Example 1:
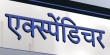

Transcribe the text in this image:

एक्स्पेंडिचर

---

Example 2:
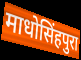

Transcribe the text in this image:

माधोसिंहपुरा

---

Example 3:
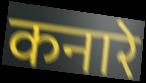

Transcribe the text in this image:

कनारे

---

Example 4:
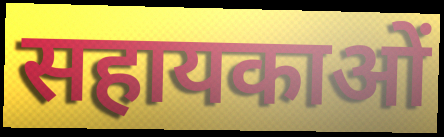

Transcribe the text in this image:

सहायकाओं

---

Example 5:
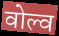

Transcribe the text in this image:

वोल्व